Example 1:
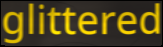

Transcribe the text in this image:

glittered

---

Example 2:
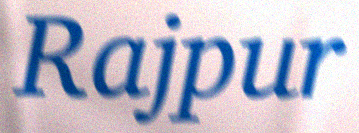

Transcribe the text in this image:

Rajpur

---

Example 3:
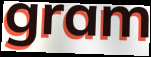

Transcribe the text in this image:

gram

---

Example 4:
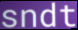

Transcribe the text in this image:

sndt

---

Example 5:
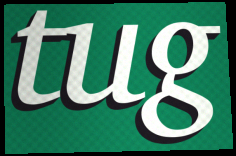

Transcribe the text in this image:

tug